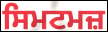
ਸਿਮਟਮਜ਼